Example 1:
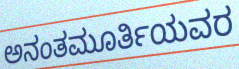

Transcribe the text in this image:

ಅನಂತಮೂರ್ತಿಯವರ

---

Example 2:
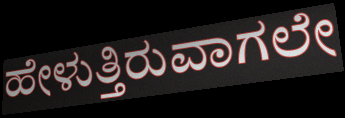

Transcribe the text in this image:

ಹೇಳುತ್ತಿರುವಾಗಲೇ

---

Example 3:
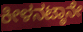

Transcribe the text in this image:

ಕೀಳನಟ್ಠಾನೇ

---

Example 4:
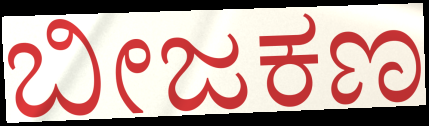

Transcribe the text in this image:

ಬೀಜಕಣ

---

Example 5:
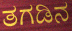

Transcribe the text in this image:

ತಗಡಿನ